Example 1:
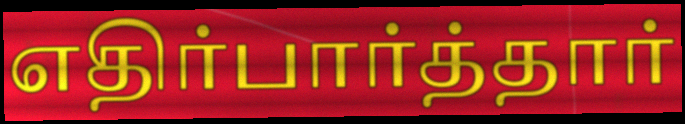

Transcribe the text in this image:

எதிர்பார்த்தார்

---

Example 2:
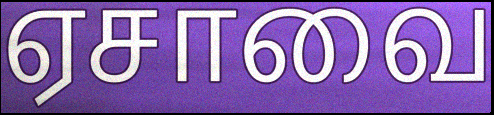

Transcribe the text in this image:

ஏசாவை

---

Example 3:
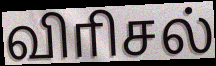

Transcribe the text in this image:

விரிசல்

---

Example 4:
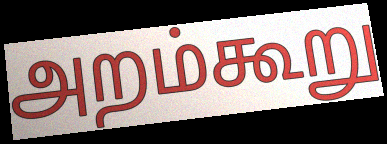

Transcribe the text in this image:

அறம்கூறு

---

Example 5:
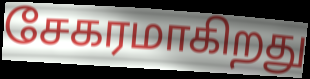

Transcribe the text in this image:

சேகரமாகிறது